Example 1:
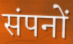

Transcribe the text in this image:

संपनों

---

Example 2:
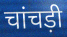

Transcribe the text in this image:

चांचड़ी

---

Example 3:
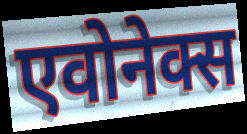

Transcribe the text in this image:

एवोनेक्स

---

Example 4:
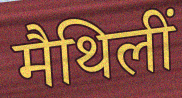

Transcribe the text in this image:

मैथिलीं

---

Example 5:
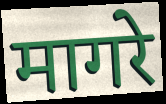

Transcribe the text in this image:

मागरे